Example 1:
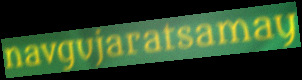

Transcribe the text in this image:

navgujaratsamay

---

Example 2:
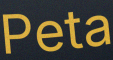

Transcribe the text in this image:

Peta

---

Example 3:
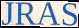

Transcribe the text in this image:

JRAS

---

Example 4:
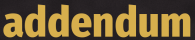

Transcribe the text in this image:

addendum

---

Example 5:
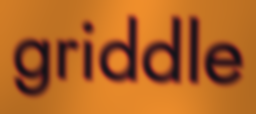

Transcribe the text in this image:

griddle